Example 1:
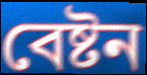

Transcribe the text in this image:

বেষ্টন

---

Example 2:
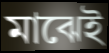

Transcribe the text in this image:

মাঝেই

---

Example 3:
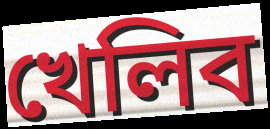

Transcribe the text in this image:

খেলিব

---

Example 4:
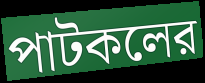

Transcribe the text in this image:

পাটকলের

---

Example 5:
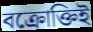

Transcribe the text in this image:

বক্রোক্তিই